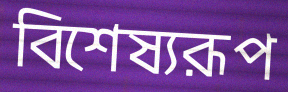
বিশেষ্যরূপ